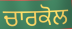
ਚਾਰਕੋਲ